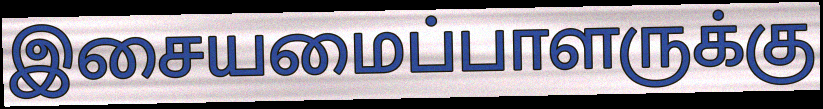
இசையமைப்பாளருக்கு